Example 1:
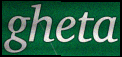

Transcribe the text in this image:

gheta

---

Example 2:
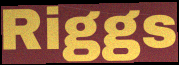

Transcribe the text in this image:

Riggs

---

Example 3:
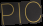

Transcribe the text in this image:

PIC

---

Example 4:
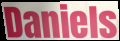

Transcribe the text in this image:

Daniels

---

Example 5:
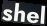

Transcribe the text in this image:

shel